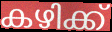
കഴിക്ക്